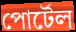
পোর্টেল